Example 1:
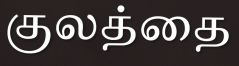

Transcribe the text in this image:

குலத்தை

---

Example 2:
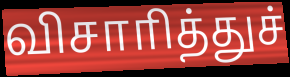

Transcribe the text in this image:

விசாரித்துச்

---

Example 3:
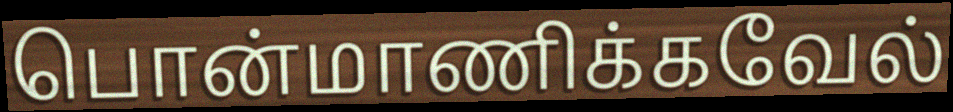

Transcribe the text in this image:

பொன்மாணிக்கவேல்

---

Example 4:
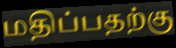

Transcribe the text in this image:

மதிப்பதற்கு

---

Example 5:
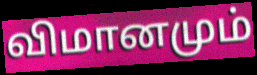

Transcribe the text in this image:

விமானமும்